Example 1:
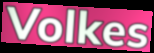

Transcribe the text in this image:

Volkes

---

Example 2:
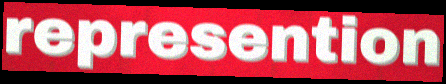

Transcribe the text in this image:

represention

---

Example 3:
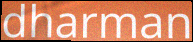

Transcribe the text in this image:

dharman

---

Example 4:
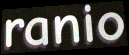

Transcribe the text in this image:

ranio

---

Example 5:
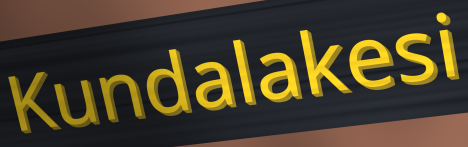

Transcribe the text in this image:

Kundalakesi